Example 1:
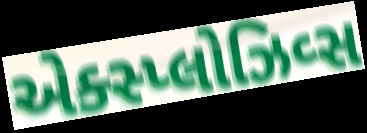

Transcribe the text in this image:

એક્સ્પ્લોઝિવ્સ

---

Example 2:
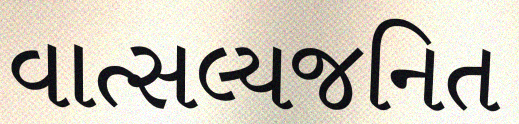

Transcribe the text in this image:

વાત્સલ્યજનિત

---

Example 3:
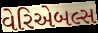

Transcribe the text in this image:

વેરિએબલ્સ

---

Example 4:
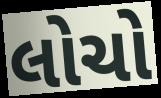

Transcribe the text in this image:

લોચો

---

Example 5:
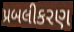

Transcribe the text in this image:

પ્રબલીકરણ